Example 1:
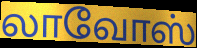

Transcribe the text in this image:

லாவோஸ்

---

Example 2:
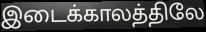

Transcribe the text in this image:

இடைக்காலத்திலே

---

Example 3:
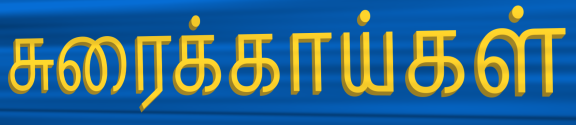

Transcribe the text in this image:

சுரைக்காய்கள்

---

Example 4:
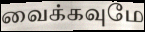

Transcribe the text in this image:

வைக்கவுமே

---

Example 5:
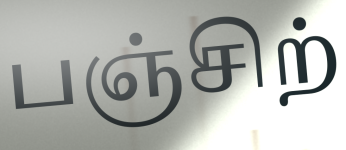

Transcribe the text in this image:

பஞ்சிற்